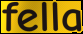
fella